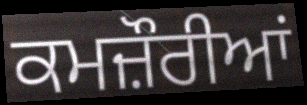
ਕਮਜ਼ੌਰੀਆਂ